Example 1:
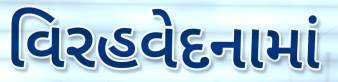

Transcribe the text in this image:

વિરહવેદનામાં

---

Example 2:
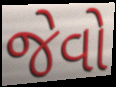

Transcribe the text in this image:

જેવો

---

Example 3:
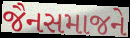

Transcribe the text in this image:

જૈનસમાજને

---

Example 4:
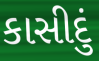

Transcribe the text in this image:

કાસીદું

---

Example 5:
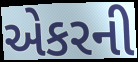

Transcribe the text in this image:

એકરની